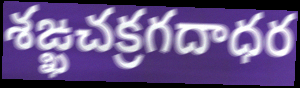
శఙ్ఖచక్రగదాధర